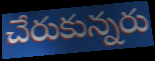
చేరుకున్నరు